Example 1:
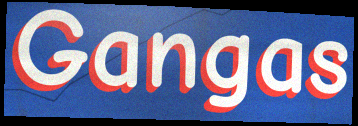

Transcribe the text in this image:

Gangas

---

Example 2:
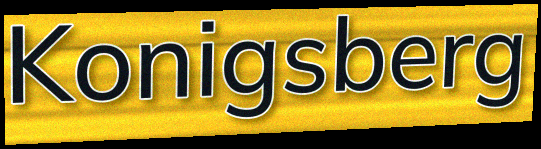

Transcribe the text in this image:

Konigsberg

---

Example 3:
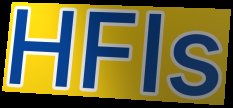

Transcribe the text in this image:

HFIs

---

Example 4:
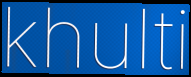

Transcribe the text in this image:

khulti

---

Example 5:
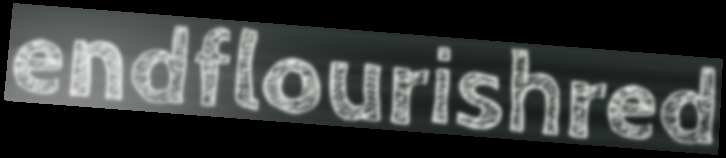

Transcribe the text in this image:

endflourishred